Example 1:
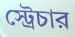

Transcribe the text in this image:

স্ট্রেচার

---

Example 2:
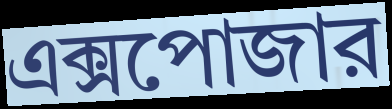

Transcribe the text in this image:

এক্সপোজার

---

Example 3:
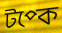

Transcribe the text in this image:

টপ্কে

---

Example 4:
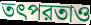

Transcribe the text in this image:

তৎপরতাও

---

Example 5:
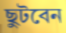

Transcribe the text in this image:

ছুটবেন